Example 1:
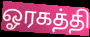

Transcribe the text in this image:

ஓரகத்தி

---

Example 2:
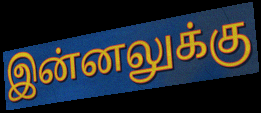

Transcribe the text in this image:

இன்னலுக்கு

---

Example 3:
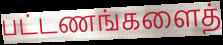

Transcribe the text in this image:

பட்டணங்களைத்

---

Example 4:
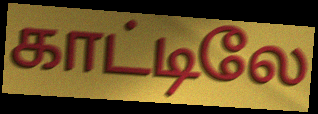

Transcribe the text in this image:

காட்டிலே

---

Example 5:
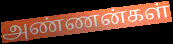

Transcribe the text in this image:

அண்ணன்கள்